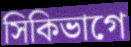
সিকিভাগে